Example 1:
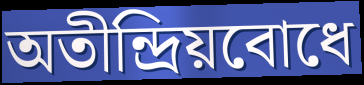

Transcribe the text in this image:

অতীন্দ্রিয়বোধে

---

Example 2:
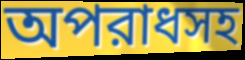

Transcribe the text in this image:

অপরাধসহ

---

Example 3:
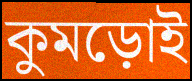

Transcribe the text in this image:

কুমড়োই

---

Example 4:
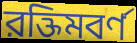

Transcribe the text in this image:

রক্তিমবর্ণ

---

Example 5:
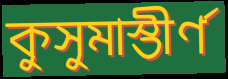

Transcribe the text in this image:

কুসুমাস্তীর্ণ